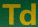
Td